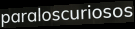
paraloscuriosos